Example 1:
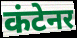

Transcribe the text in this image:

कंटेनर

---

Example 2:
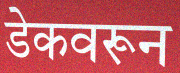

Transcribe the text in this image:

डेकवरून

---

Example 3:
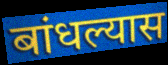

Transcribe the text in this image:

बांधल्यास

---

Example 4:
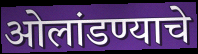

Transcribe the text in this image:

ओलांडण्याचे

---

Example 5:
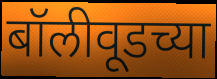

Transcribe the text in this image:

बॉलीवूडच्या